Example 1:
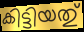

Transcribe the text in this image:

കിട്ടിയതു്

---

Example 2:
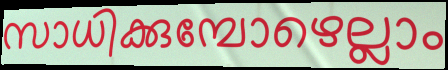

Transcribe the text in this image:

സാധിക്കുമ്പോഴെല്ലാം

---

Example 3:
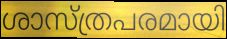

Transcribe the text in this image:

ശാസ്ത്രപരമായി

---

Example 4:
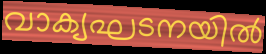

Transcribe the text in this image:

വാക്യഘടനയിൽ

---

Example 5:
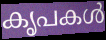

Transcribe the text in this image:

കൃപകൾ